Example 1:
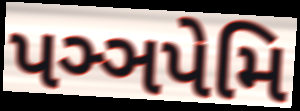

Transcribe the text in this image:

પઞ્ઞપેમિ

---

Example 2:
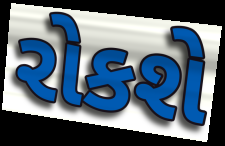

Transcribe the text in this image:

રોકશે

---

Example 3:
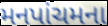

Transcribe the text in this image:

મનપાંચમના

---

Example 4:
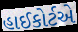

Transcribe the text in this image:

હાઈકોર્ટએ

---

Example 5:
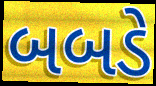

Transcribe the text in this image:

બબડે